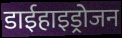
डाईहाइड्रोजन